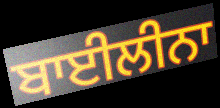
ਬਾਈਲੀਨਾ